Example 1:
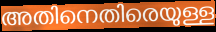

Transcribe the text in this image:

അതിനെതിരെയുള്ള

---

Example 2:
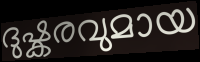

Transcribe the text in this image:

ദുഷ്കരവുമായ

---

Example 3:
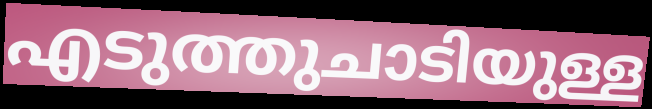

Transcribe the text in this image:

എടുത്തുചാടിയുള്ള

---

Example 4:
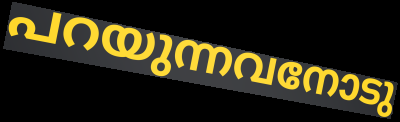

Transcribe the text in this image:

പറയുന്നവനോടു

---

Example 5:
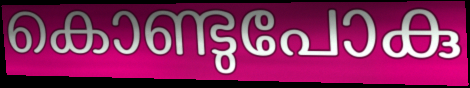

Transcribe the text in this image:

കൊണ്ടുപോകു